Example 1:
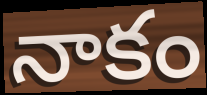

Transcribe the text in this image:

నాకం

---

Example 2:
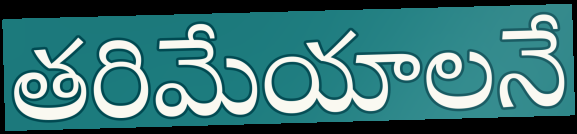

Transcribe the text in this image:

తరిమేయాలనే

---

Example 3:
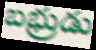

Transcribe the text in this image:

బభ్రుడు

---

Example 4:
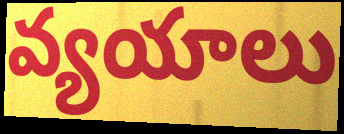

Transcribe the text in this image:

వ్యయాలు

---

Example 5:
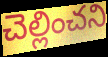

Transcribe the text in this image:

చెల్లించని